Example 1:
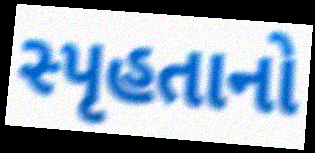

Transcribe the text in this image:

સ્પૃહતાનો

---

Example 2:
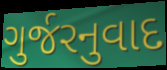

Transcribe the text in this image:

ગુર્જરનુવાદ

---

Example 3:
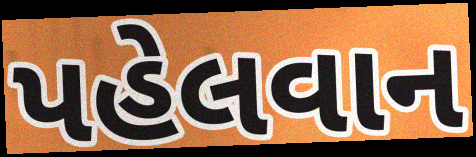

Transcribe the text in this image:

પહેલવાન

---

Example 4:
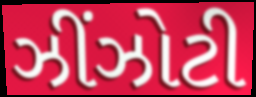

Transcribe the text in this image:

ઝીંઝોટી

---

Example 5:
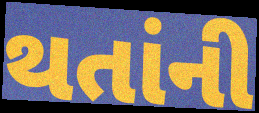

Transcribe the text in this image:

થતાંની